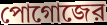
পোগোজের